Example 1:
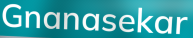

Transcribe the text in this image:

Gnanasekar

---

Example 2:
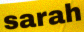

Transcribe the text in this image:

sarah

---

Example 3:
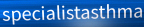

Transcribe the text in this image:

specialistasthma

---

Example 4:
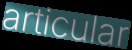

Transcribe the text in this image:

articular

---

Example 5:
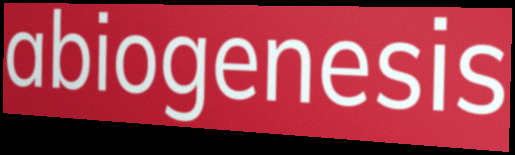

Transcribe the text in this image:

abiogenesis